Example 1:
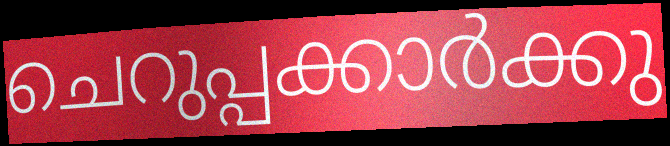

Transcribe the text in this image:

ചെറുപ്പക്കാർക്കു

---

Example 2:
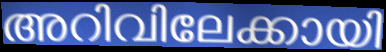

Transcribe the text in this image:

അറിവിലേക്കായി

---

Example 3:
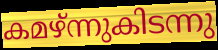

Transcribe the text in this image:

കമഴ്ന്നുകിടന്നു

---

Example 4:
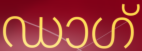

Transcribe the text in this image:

ഡാഗ്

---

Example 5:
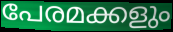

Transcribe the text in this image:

പേരമക്കളും